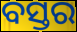
ବସ୍ତର